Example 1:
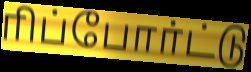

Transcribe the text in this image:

ரிப்போர்ட்டு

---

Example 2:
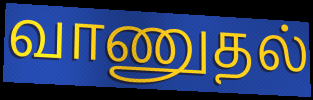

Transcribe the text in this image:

வாணுதல்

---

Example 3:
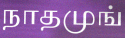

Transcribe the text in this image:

நாதமுங்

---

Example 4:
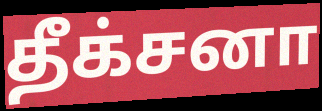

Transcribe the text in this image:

தீக்சனா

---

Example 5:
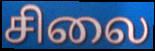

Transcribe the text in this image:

சிலை